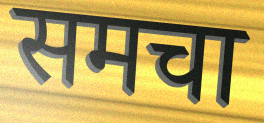
समचा